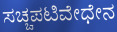
ಸಚ್ಚಪಟಿವೇಧೇನ